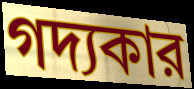
গদ্যকার